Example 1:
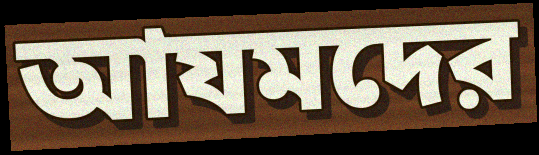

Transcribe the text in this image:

আযমদের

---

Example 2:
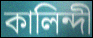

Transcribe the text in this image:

কালিন্দী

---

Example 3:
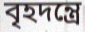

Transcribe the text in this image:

বৃহদন্ত্রে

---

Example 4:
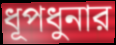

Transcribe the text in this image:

ধূপধুনার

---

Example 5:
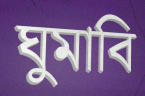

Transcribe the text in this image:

ঘুমাবি